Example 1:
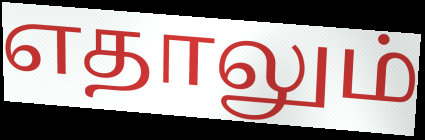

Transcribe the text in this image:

எதாலும்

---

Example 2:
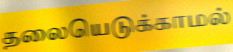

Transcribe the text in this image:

தலையெடுக்காமல்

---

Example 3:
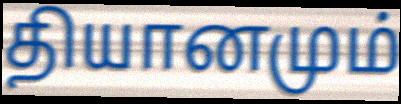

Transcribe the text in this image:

தியானமும்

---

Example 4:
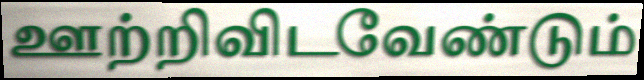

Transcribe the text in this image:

ஊற்றிவிடவேண்டும்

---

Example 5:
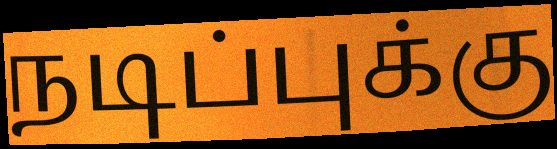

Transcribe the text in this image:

நடிப்புக்கு